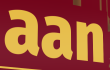
aan